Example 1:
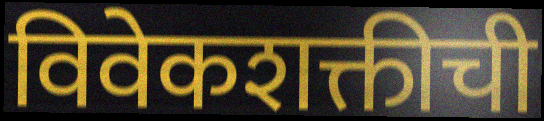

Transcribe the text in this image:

विवेकशक्तीची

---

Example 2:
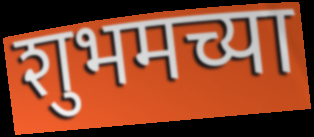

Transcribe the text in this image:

शुभमच्या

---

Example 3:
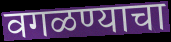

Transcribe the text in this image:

वगळण्याचा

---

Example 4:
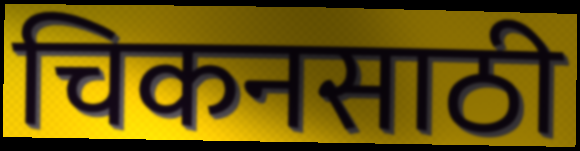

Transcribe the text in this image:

चिकनसाठी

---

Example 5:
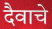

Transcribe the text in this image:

दैवाचे